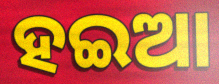
ହଇଆ